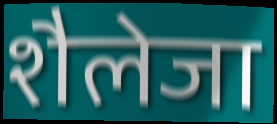
शैलेजा